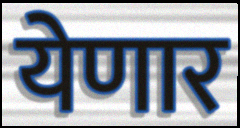
येणार